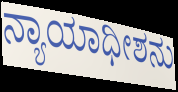
ನ್ಯಾಯಾಧೀಶನು